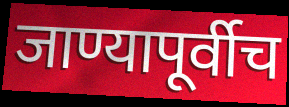
जाण्यापूर्वीच